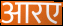
आरए